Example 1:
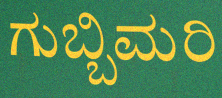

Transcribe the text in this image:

ಗುಬ್ಬಿಮರಿ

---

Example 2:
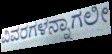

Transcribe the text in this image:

ವಿವರಗಳನ್ನಾಗಲೀ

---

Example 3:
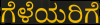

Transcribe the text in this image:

ಗೆಳೆಯರಿಗೆ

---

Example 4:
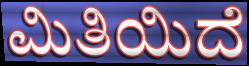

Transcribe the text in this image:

ಮಿತಿಯಿದೆ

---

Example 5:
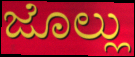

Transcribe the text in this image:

ಜೊಲ್ಲು